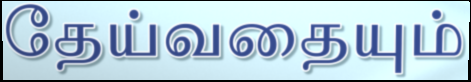
தேய்வதையும்